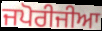
ਜਪੋਰੀਜੀਆ